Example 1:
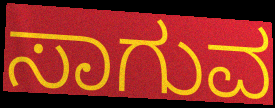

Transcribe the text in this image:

ಸಾಗುವ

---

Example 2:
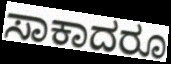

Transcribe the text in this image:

ಸಾಕಾದರೂ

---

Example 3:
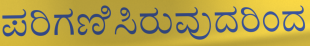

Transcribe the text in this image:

ಪರಿಗಣಿಸಿರುವುದರಿಂದ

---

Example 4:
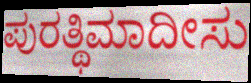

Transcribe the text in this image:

ಪುರತ್ಥಿಮಾದೀಸು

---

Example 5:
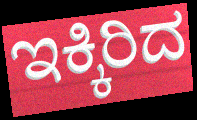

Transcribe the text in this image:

ಇಕ್ಕಿರಿದ